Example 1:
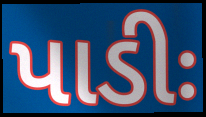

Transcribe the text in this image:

પાડીઃ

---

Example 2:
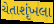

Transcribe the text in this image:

ચેતાશૃંખલા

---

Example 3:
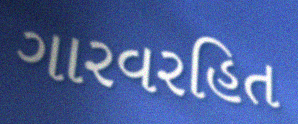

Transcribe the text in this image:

ગારવરહિત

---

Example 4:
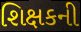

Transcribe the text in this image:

શિક્ષકની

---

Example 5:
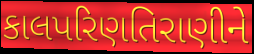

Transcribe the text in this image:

કાલપરિણતિરાણીને